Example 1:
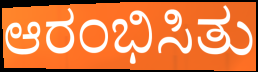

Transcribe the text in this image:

ಆರಂಭಿಸಿತು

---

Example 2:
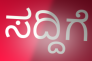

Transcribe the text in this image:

ಸದ್ದಿಗೆ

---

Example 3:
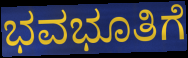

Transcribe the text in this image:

ಭವಭೂತಿಗೆ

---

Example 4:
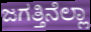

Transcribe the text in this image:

ಜಗತ್ತಿನೆಲ್ಲಾ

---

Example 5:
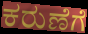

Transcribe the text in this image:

ಕರುಣೆಗೆ